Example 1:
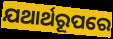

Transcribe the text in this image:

ଯଥାର୍ଥରୂପରେ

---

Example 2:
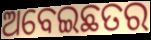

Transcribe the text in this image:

ଅବେଇଛତର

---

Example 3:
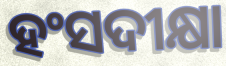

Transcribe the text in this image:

ହଂସଦୀକ୍ଷା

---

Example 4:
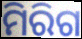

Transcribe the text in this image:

ମିରିଗ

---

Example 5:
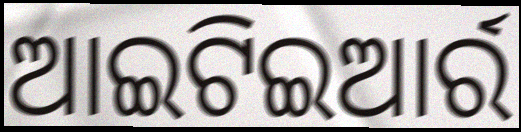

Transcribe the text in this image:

ଆଇଟିଇଆର୍ର